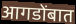
आगडोंबात